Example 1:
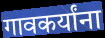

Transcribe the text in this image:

गावकर्यांना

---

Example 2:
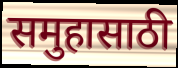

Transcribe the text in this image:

समुहासाठी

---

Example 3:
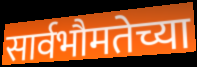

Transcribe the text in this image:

सार्वभौमतेच्या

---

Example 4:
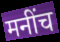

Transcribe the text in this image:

मनींच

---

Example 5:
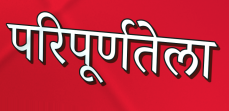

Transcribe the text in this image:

परिपूर्णतेला